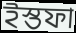
ইস্তফা